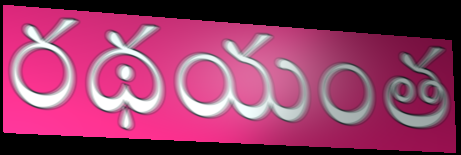
రథయంత